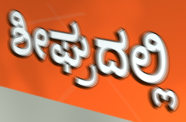
ಶೀಘ್ರದಲ್ಲಿ